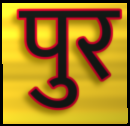
पुर